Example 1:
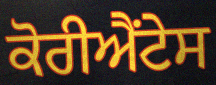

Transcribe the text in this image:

ਕੋਰੀਐਂਟੇਸ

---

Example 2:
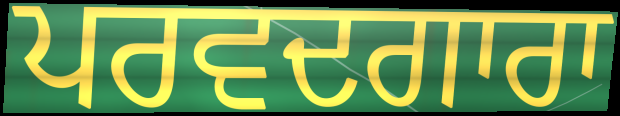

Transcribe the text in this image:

ਪਰਵਦਗਾਰਾ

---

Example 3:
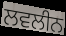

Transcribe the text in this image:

ਲਵਲੀਨ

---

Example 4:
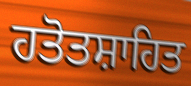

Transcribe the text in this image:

ਹਤੋਤਸ਼ਾਹਿਤ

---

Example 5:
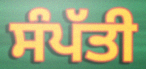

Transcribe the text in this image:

ਸੰਪੱਤੀ